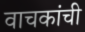
वाचकांची